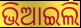
ଭିଆଇଲି